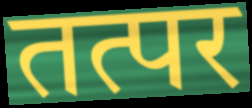
तत्‍पर